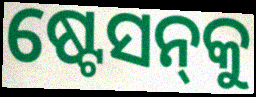
ଷ୍ଟେସନ୍‍କୁ